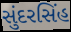
સુંદરસિંહ